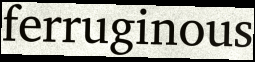
ferruginous